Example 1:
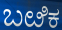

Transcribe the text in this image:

ಬೞಿಕ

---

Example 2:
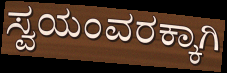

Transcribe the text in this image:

ಸ್ವಯಂವರಕ್ಕಾಗಿ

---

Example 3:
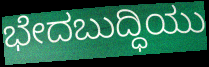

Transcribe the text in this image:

ಭೇದಬುದ್ಧಿಯು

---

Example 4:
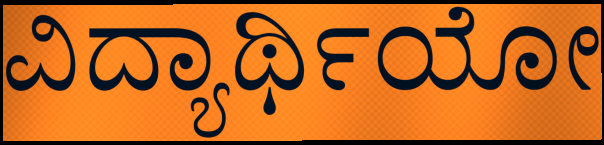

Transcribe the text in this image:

ವಿದ್ಯಾರ್ಥಿಯೋ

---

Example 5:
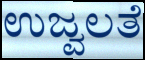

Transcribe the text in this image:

ಉಜ್ವಲತೆ